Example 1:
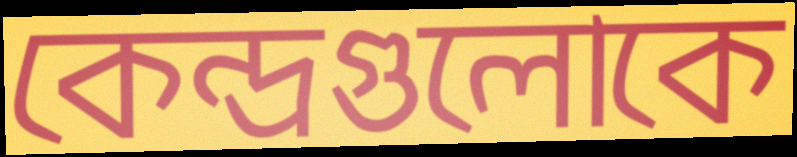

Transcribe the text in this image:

কেন্দ্রগুলোকে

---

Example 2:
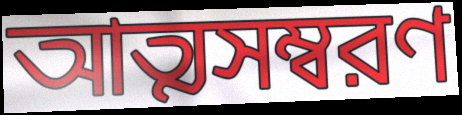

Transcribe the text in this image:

আত্মসম্বরণ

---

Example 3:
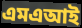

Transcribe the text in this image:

এমএআই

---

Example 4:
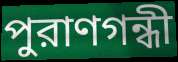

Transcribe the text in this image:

পুরাণগন্ধী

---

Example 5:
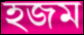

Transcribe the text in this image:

হজম